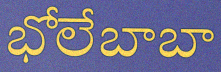
భోలేబాబా